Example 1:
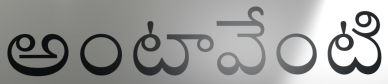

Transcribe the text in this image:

అంటావేంటి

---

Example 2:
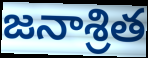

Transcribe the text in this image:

జనాశ్రిత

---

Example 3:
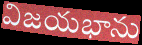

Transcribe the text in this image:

విజయభాను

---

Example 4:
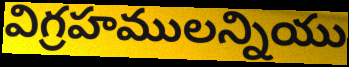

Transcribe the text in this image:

విగ్రహములన్నియు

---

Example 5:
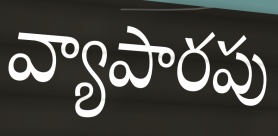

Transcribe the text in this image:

వ్యాపారపు